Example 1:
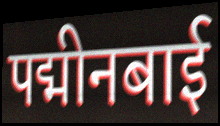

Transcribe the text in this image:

पद्मीनबाई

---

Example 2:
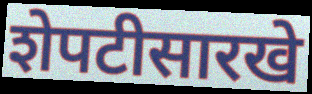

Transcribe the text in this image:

शेपटीसारखे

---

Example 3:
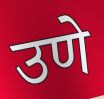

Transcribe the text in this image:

उणे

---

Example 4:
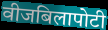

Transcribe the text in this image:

वीजबिलापोटी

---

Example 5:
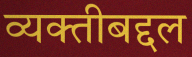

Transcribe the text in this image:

व्यक्तीबद्दल